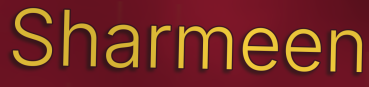
Sharmeen